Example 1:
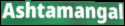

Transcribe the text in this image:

Ashtamangal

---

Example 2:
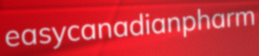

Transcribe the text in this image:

easycanadianpharm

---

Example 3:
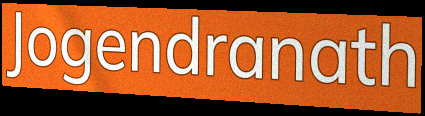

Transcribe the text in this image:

Jogendranath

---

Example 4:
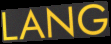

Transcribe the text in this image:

LANG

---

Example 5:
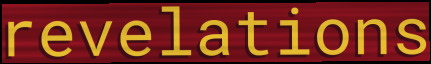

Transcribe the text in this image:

revelations